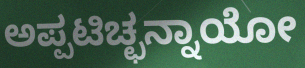
ಅಪ್ಪಟಿಚ್ಛನ್ನಾಯೋ